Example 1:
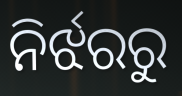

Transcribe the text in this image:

ନିର୍ଝରରୁ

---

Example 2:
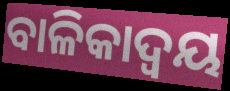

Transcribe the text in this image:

ବାଳିକାଦ୍ୱୟ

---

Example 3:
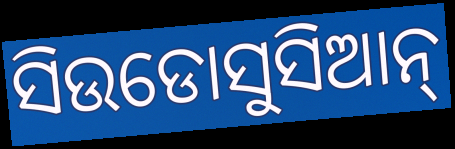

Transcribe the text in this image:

ସିଉଡୋସୁସିଆନ୍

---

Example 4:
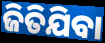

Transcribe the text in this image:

ଜିତିଯିବା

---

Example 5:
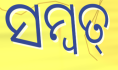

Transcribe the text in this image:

ସମ୍ବତ୍